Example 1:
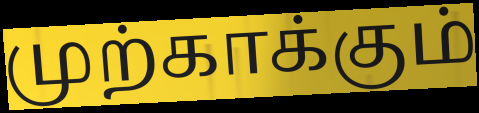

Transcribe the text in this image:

முற்காக்கும்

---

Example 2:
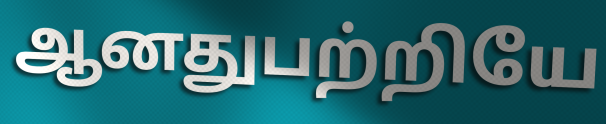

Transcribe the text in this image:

ஆனதுபற்றியே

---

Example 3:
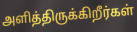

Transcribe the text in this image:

அளித்திருக்கிறீர்கள்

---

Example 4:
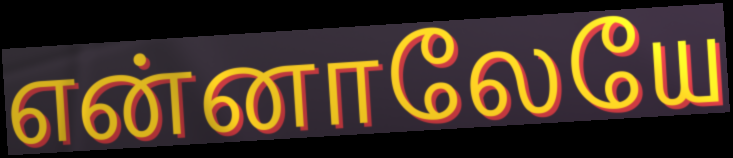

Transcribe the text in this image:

என்னாலேயே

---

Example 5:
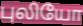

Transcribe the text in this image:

புலியோ